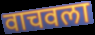
वाचवला